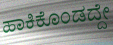
ಹಾಕಿಕೊಂಡದ್ದೇ